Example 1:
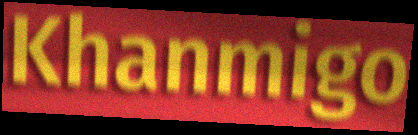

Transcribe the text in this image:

Khanmigo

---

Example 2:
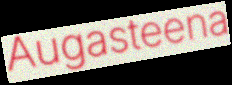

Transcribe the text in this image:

Augasteena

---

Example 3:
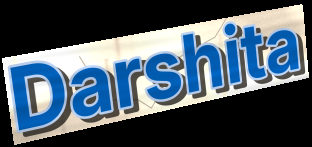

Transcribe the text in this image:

Darshita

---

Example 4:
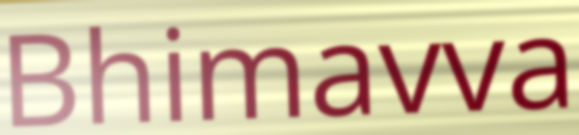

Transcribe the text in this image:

Bhimavva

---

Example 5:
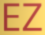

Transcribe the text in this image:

EZ